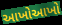
આખોઆખો